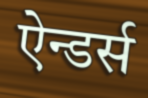
ऐन्डर्स